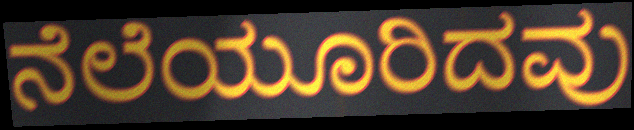
ನೆಲೆಯೂರಿದವು